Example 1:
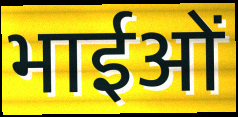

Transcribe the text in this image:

भाईओं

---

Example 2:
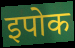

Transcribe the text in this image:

इपोक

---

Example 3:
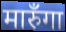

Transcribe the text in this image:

मारुँगा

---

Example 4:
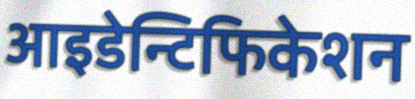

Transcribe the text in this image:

आइडेन्टिफिकेशन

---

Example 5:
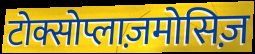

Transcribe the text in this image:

टोक्सोप्लाज़मोसिज़